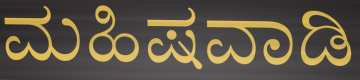
ಮಹಿಷವಾಡಿ